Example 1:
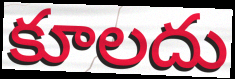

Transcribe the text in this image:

కూలదు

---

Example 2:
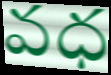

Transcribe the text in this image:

వధ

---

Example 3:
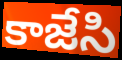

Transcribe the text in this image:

కాజేసి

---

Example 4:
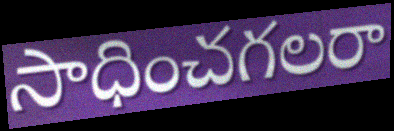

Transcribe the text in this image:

సాధించగలరా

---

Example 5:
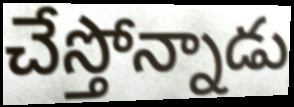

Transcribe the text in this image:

చేస్తోన్నాడు